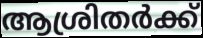
ആശ്രിതർക്ക്